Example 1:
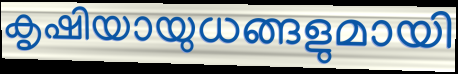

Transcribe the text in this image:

കൃഷിയായുധങ്ങളുമായി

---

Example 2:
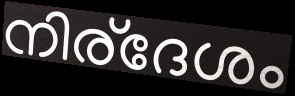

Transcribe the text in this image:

നിര്ദേശം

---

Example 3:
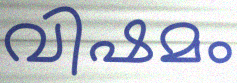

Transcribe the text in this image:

വിഷമം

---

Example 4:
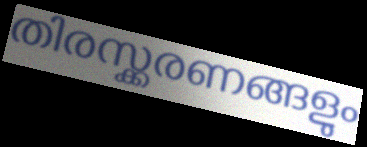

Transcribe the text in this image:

തിരസ്ക്കരണങ്ങളും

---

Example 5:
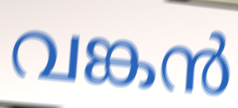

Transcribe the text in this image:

വങ്കൻ